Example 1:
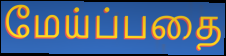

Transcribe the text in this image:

மேய்ப்பதை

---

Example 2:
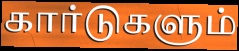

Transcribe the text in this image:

கார்டுகளும்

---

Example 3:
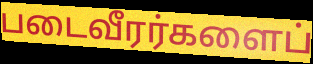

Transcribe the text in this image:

படைவீரர்களைப்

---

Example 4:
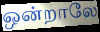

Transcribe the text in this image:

ஒன்றாலே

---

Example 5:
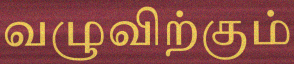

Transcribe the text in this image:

வழுவிற்கும்